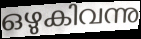
ഒഴുകിവന്നു